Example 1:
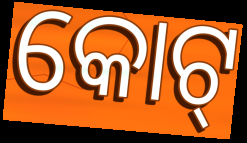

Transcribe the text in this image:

କୋଟ୍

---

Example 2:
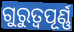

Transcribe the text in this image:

ଗୁରୁତ୍ବପୂର୍ଣ୍ଣ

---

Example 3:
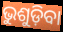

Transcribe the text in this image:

ଭୁଶୁଡ଼ିବା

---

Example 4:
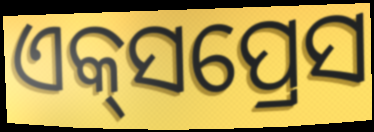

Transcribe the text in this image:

ଏକ୍‌ସପ୍ରେସ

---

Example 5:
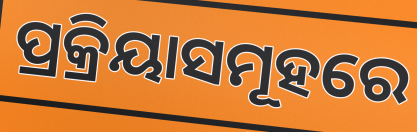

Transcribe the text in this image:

ପ୍ରକ୍ରିୟାସମୂହରେ